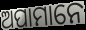
ଅପାମାନେ